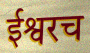
ईश्वरच